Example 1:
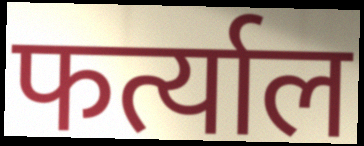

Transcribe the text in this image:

फर्त्याल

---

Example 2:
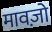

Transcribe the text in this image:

मावज़ो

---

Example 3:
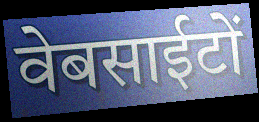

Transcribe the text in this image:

वेबसाईटों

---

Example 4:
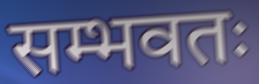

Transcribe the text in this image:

सम्भवतः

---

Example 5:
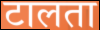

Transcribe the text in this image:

टालता